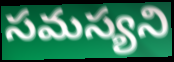
సమస్యని